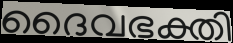
ദൈവഭക്തി